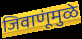
जिवाणूंमुळे